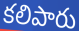
కలిపారు